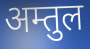
अम्तुल